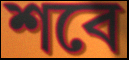
শবে